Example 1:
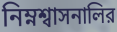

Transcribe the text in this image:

নিম্নশ্বাসনালির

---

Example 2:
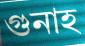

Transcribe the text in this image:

গুনাহ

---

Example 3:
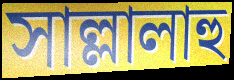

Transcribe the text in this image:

সাল্লালাহু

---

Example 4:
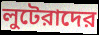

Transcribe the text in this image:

লুটেরাদের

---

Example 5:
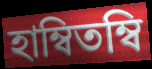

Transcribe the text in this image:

হাম্বিতম্বি